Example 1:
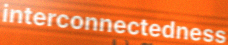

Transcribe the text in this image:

interconnectedness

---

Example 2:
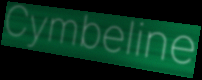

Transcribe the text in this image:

Cymbeline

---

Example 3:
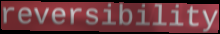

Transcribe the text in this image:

reversibility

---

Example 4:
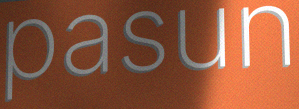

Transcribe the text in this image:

pasun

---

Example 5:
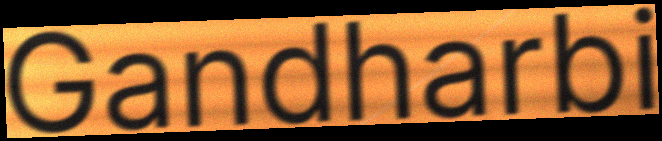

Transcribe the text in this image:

Gandharbi